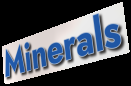
Minerals